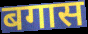
बगास